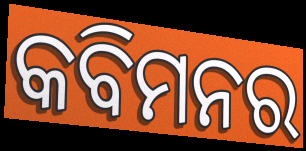
କବିମନର